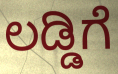
ಲಡ್ಡಿಗೆ